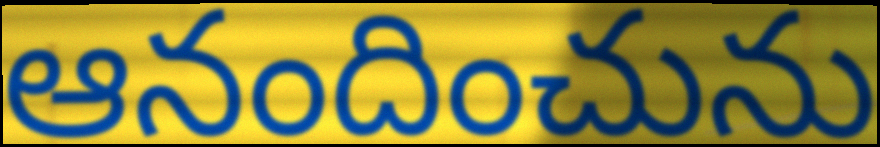
ఆనందించును